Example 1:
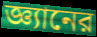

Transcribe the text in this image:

জ্ঞ্যানের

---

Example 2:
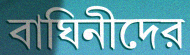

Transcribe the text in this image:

বাঘিনীদের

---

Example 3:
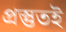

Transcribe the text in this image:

প্রস্তুতই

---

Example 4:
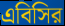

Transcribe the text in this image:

এবিসির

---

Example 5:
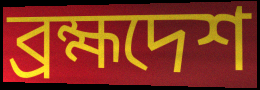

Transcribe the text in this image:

ব্রহ্মদেশ